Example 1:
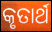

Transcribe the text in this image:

କୃତାର୍ଥ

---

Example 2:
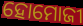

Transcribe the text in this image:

ହୋମୋଜୀ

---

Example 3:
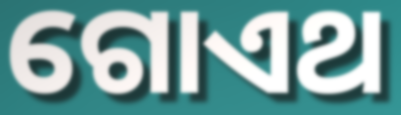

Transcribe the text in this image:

ଗୋଏଥ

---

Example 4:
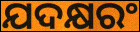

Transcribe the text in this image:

ଯଦକ୍ଷରଂ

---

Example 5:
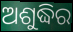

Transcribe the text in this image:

ଅଶୁଦ୍ଧିର